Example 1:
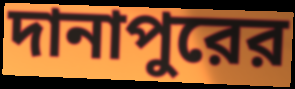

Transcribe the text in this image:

দানাপুরের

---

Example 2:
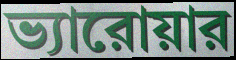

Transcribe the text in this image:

ভ্যারোয়ার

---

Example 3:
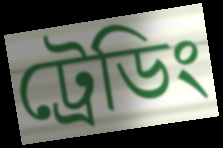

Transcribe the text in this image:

ট্রেডিং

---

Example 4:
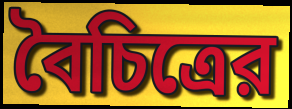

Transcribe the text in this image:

বৈচিত্রের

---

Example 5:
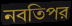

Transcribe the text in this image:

নবতিপর